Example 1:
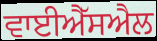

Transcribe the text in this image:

ਵਾਈਐੱਸਐਲ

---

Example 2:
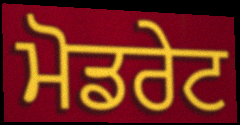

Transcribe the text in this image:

ਮੋਡਰੇਟ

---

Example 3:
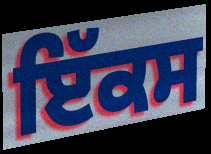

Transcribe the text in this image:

ਇੱਕਸ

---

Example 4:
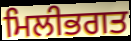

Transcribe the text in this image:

ਮਿਲੀਭਗਤ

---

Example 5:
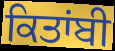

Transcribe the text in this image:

ਕਿਤਾਂਬੀ